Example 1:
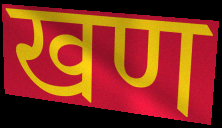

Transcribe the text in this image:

खण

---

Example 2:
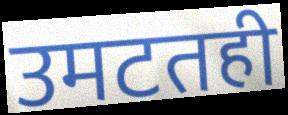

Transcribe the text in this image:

उमटतही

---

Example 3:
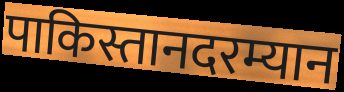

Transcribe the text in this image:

पाकिस्तानदरम्यान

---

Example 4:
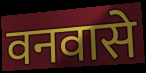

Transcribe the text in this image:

वनवासे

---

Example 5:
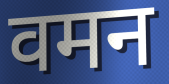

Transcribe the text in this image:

वमन